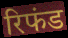
रिफंड